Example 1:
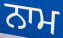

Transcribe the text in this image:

ਨਾਮ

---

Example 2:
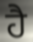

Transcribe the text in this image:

ਹੈ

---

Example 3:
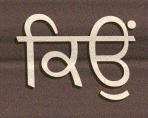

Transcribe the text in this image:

ਕਿਉਂ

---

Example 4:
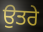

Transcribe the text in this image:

ਉਤਰੇ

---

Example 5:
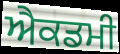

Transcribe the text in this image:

ਐਕਡਮੀ